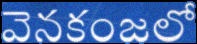
వెనకంజలో